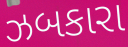
ઝબકારા